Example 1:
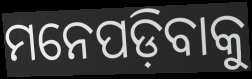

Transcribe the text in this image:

ମନେପଡ଼ିବାକୁ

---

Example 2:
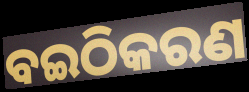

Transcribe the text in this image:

ବଇଠିକରଣ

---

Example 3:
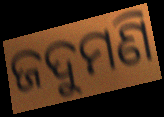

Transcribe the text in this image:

ଜଦୁମଣି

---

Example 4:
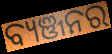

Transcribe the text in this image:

ବ୍ୟଞ୍ଜନର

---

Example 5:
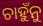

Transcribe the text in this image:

ଚାହୁଁନୁ